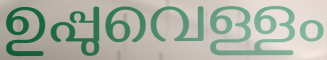
ഉപ്പുവെള്ളം